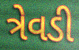
ત્રેવડી